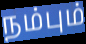
நம்பும்